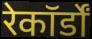
रेकॉर्डों